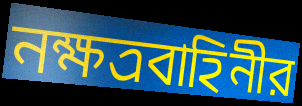
নক্ষত্রবাহিনীর